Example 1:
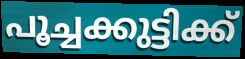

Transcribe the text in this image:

പൂച്ചക്കുട്ടിക്ക്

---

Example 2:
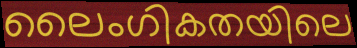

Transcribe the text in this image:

ലൈംഗികതയിലെ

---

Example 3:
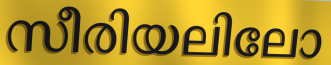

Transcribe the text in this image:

സീരിയലിലോ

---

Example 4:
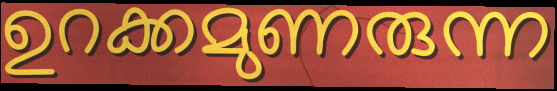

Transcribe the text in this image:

ഉറക്കമുണരുന്ന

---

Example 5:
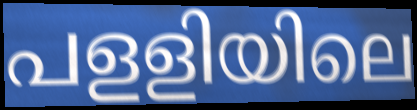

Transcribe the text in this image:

പളളിയിലെ